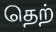
தெற்